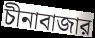
চীনাবাজার